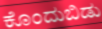
ಕೊಂದುಬಿಡು